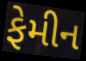
ફેમીન